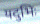
यदुभिः